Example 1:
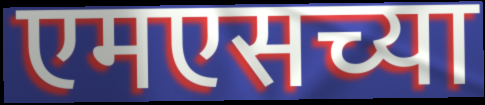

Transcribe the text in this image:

एमएसच्या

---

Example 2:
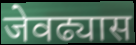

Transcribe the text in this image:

जेवढ्यास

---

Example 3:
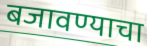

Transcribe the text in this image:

बजावण्याचा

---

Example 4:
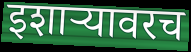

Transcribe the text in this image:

इशाऱ्यावरच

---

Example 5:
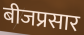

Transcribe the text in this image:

बीजप्रसार